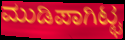
ಮುಡಿಪಾಗಿಟ್ಟ